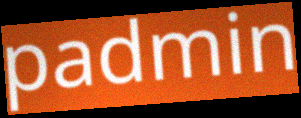
padmin